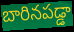
బారినపడ్డా